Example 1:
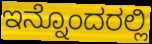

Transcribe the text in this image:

ಇನ್ನೊಂದರಲ್ಲಿ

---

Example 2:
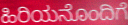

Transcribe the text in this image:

ಹಿರಿಯನೊಂದಿಗೆ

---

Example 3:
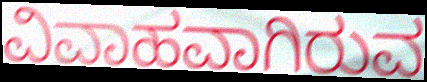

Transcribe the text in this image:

ವಿವಾಹವಾಗಿರುವ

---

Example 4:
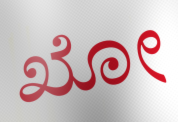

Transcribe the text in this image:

ಖೋ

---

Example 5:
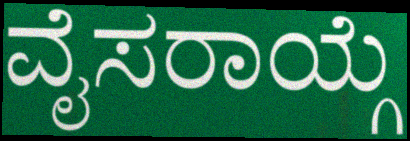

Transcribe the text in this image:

ವೈಸರಾಯ್ಗೆ